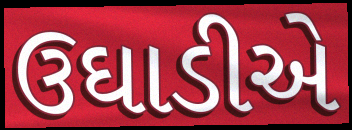
ઉઘાડીએ